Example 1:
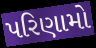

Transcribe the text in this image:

પરિણામો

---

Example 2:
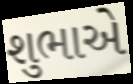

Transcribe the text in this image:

શુભાએ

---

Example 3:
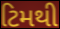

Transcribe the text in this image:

ટિમથી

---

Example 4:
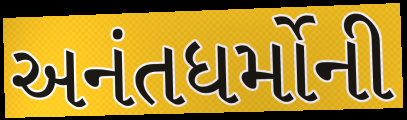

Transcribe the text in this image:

અનંતધર્મોની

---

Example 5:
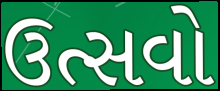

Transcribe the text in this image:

ઉત્સવો